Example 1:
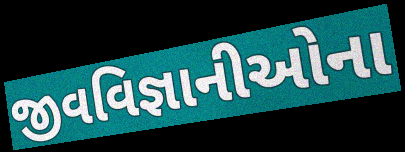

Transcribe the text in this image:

જીવવિજ્ઞાનીઓના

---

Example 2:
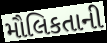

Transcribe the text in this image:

મૌલિકતાની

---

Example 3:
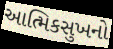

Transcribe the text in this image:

આત્મિકસુખનો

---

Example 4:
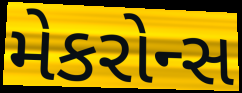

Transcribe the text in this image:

મેકરોન્સ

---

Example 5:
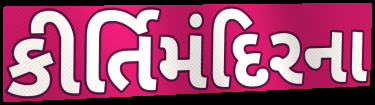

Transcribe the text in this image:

કીર્તિમંદિરના